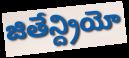
జితేన్ద్రియో